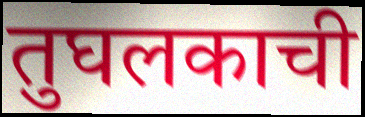
तुघलकाची